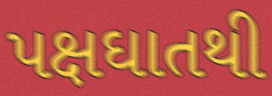
પક્ષઘાતથી